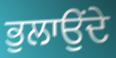
ਭੁਲਾਉਂਦੇ